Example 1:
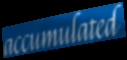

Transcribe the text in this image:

accumulated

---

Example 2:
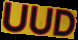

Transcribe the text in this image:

UUD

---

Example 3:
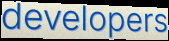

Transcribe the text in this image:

developers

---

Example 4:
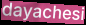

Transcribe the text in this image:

dayachesi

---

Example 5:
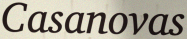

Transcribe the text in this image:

Casanovas